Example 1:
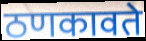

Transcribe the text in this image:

ठणकावते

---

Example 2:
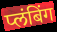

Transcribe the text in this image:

प्लंबिंग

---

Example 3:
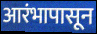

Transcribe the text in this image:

आरंभापासून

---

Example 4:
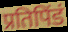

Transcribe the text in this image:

प्रतिपिंडं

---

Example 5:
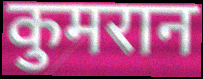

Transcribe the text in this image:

कुमरान